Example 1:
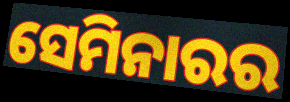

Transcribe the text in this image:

ସେମିନାରର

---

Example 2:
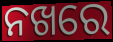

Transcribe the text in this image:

ନଖରେ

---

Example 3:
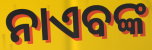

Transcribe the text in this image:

ନାଏବଙ୍କ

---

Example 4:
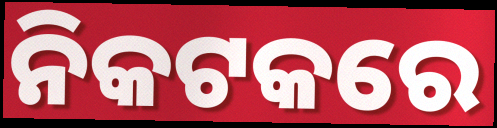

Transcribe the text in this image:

ନିକଟକରେ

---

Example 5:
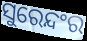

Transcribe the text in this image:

ସୁରେନ୍ଦଂର